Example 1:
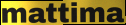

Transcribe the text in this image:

mattima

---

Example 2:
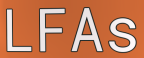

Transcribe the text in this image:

LFAs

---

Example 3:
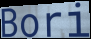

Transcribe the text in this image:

Bori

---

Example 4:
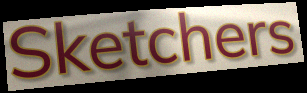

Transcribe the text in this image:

Sketchers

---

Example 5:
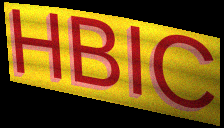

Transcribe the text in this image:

HBIC